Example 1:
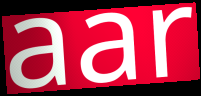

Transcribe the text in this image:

aar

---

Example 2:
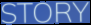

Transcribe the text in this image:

STORY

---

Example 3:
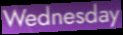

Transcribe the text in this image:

Wednesday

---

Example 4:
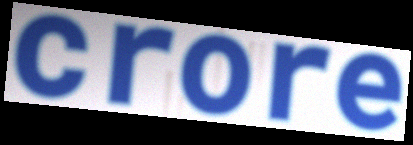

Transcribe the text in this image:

crore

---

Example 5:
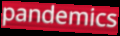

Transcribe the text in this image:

pandemics